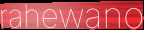
rahewano